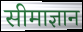
सीमाज्ञान